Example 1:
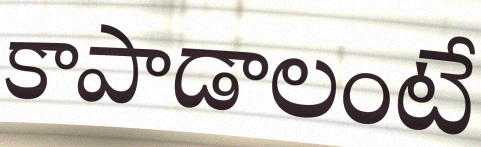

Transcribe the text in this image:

కాపాడాలంటే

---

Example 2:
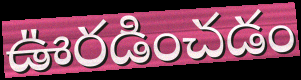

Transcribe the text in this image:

ఊరడించడం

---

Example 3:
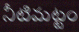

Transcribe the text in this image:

నీటిమట్టం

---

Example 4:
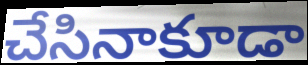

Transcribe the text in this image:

చేసినాకూడా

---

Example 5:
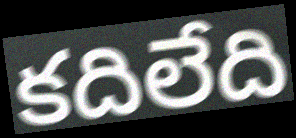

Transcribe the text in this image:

కదిలేది